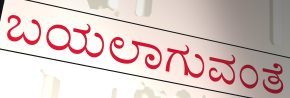
ಬಯಲಾಗುವಂತೆ